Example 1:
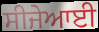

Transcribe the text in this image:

ਸੀਜੇਆਈ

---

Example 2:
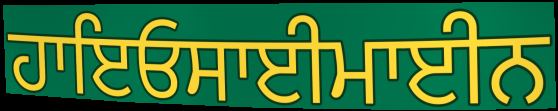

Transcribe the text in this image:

ਹਾਇਓਸਾਈਮਾਈਨ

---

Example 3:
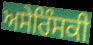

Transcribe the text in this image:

ਅਸੇਰਿੰਸਕੀ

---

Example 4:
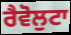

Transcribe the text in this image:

ਰੈਵੋਲੁਟਾ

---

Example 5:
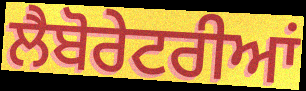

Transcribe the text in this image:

ਲੈਬੋਰੇਟਰੀਆਂ